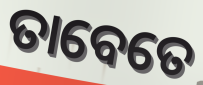
ତାବେତେ